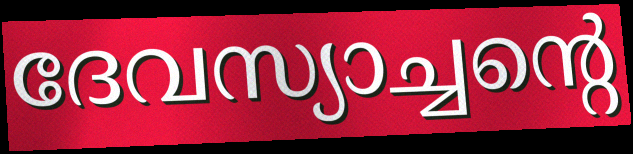
ദേവസ്യാച്ചന്റെ